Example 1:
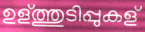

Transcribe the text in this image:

ഉള്ത്തുടിപ്പുകള്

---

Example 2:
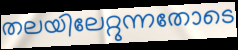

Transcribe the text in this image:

തലയിലേറ്റുന്നതോടെ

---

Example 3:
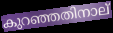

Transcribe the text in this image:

കുറഞ്ഞതിനാല്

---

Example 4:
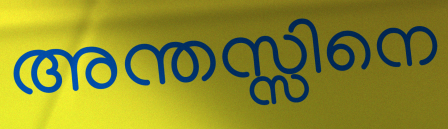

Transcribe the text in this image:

അന്തസ്സിനെ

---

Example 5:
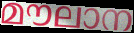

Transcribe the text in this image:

മൗലാന